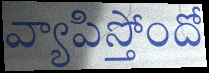
వ్యాపిస్తోందో